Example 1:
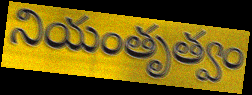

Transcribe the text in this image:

నియంతృత్వం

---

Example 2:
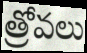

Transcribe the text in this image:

త్రోవలు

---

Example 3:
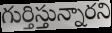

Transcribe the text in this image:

గుర్తిస్తున్నారని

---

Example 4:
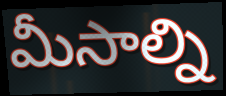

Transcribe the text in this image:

మీసాల్ని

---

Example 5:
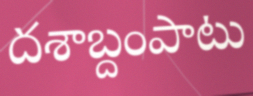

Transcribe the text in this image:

దశాబ్దంపాటు